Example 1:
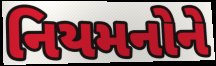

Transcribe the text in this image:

નિયમનોને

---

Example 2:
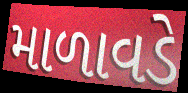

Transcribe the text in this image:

માળાવડે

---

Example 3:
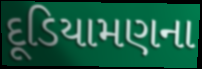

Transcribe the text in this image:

દૂડિયામણના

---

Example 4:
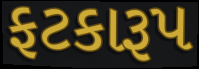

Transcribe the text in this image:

ફટકારૂપ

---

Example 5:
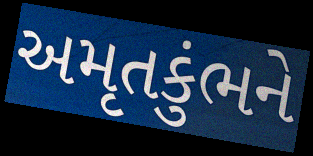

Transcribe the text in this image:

અમૃતકુંભને